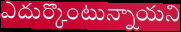
ఎదుర్కొంటున్నాయని